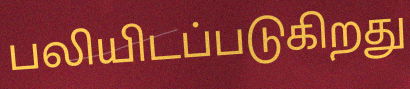
பலியிடப்படுகிறது